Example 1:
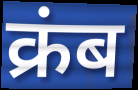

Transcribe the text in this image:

क्रंब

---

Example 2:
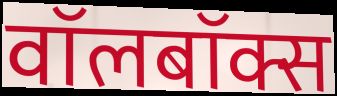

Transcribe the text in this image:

वॉलबॉक्स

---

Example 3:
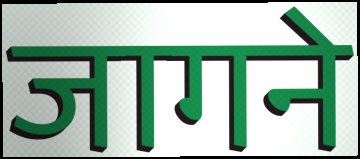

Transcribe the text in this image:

जागने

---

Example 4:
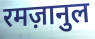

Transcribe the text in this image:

रमज़ानुल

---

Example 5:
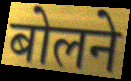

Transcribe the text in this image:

बोलने